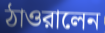
ঠাওরালেন